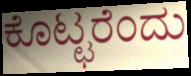
ಕೊಟ್ಟರೆಂದು